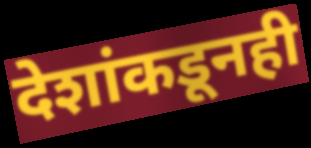
देशांकडूनही